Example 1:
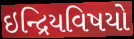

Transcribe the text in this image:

ઇન્દ્રિયવિષયો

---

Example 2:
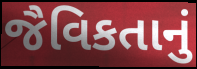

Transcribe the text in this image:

જૈવિકતાનું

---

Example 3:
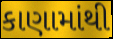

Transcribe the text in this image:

કાણામાંથી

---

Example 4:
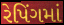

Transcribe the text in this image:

રેપિંગમાં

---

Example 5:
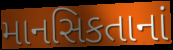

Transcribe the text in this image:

માનસિકતાનાં